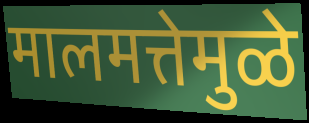
मालमत्तेमुळे